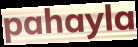
pahayla